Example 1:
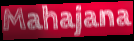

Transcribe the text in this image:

Mahajana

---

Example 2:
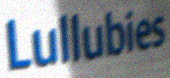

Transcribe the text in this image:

Lullubies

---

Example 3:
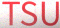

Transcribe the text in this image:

TSU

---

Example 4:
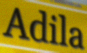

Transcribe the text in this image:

Adila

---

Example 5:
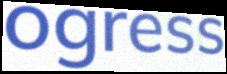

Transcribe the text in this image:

ogress